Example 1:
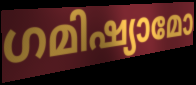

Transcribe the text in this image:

ഗമിഷ്യാമോ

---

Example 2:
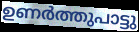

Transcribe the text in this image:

ഉണർത്തുപാട്ടു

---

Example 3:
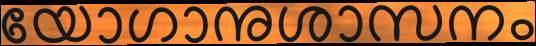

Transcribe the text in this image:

യോഗാനുശാസനം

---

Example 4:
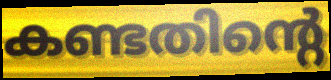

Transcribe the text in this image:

കണ്ടതിന്റെ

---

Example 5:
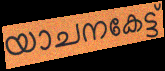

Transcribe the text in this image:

യാചനകേട്ട്